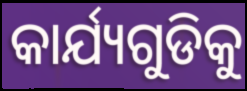
କାର୍ଯ୍ୟଗୁଡିକୁ